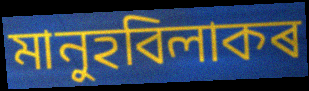
মানুহবিলাকৰ